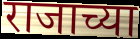
राजाच्या